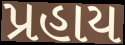
પ્રહાય